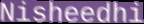
Nisheedhi